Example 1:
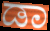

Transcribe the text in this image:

ಡಾ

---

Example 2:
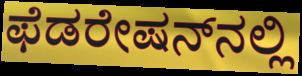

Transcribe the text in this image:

ಫೆಡರೇಷನ್‌ನಲ್ಲಿ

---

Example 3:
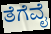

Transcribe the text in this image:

ತೆಗೆವೈ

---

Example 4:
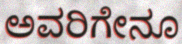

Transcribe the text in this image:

ಅವರಿಗೇನೂ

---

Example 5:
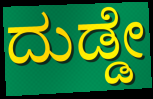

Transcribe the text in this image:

ದುಡ್ಡೇ